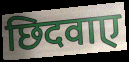
छिदवाए